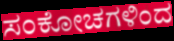
ಸಂಕೋಚಗಳಿಂದ